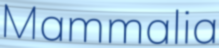
Mammalia